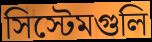
সিস্টেমগুলি